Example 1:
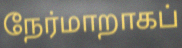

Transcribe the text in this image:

நேர்மாறாகப்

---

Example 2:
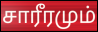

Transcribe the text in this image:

சாரீரமும்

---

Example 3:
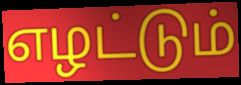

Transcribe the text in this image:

எழட்டும்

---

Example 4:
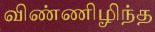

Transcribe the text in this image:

விண்ணிழிந்த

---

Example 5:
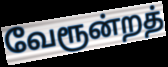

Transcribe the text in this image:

வேரூன்றத்